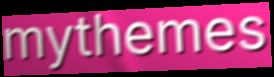
mythemes